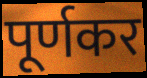
पूर्णकर